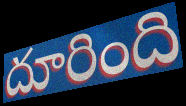
దూరింది